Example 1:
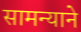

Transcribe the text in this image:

सामन्याने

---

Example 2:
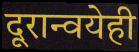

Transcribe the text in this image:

दूरान्वयेही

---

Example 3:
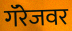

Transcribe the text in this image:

गॅरेजवर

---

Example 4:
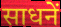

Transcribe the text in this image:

साधनें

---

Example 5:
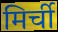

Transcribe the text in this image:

मिर्ची